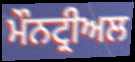
ਮੌਨਟ੍ਰੀਅਲ